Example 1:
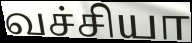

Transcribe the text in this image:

வச்சியா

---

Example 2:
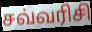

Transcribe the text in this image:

சவ்வரிசி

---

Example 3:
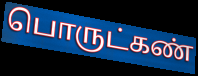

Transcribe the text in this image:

பொருட்கண்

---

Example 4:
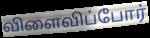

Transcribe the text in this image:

விளைவிப்போர்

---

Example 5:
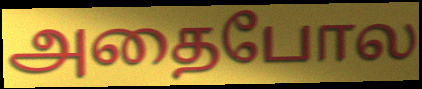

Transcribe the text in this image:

அதைபோல